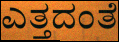
ಎತ್ತದಂತೆ